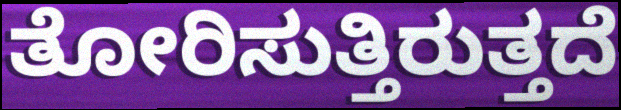
ತೋರಿಸುತ್ತಿರುತ್ತದೆ